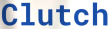
Clutch